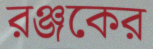
রঞ্জকের